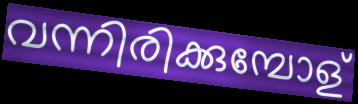
വന്നിരിക്കുമ്പോള്